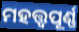
ମହତ୍ତ୍ଵପୂର୍ଣ୍ଣ